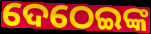
ଦେଠେଇଙ୍କ